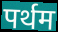
पर्थम